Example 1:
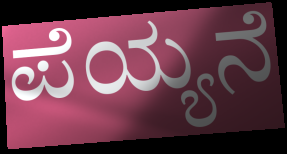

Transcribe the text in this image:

ಪೆಯ್ಯನೆ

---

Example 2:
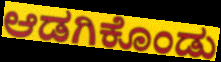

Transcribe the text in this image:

ಆಡಗಿಕೊಂಡು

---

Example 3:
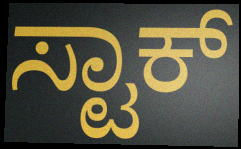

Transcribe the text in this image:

ಸ್ಟಾಕ್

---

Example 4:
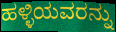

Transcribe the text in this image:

ಹಳ್ಳಿಯವರನ್ನು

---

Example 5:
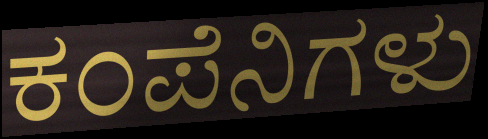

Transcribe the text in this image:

ಕಂಪೆನಿಗಳು